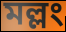
মল্লং